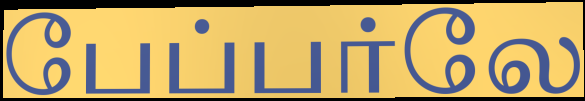
பேப்பர்லே